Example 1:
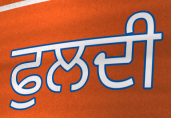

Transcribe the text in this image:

ਫੁਲਦੀ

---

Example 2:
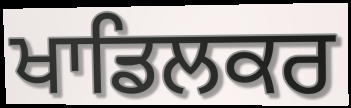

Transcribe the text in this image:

ਖਾਡਿਲਕਰ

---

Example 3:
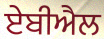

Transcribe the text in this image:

ਏਬੀਐਲ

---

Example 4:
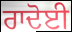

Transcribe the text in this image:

ਰਾਦੋਈ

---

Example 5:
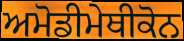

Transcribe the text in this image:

ਅਮੋਡੀਮੇਥੀਕੋਨ